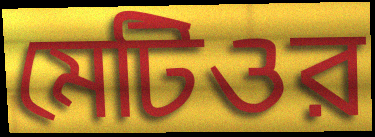
মেটিওর